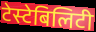
टेस्टेबिलिटी